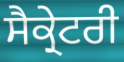
ਸੈਕ੍ਰੇਟਰੀ